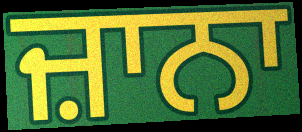
ਜ਼ਾਨਾ